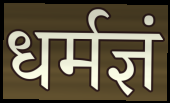
धर्मज्ञं